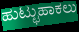
ಹುಟ್ಟುಹಾಕಲು